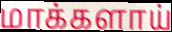
மாக்களாய்